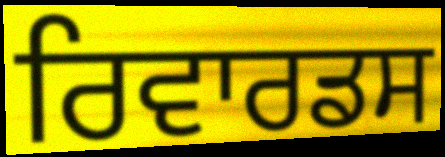
ਰਿਵਾਰਡਸ